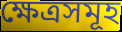
ক্ষেত্ৰসমূহ